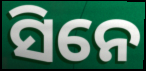
ସିନେ